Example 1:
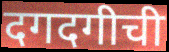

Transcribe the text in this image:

दगदगीची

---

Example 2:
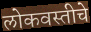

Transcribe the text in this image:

लोकवस्तीचे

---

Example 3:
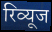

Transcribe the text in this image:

रिव्यूज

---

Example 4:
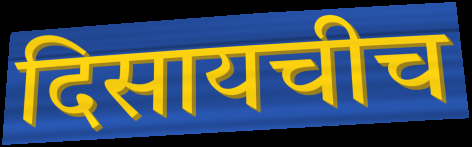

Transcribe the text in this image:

दिसायचीच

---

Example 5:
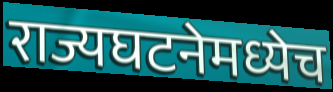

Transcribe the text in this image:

राज्यघटनेमध्येच